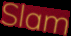
Slam